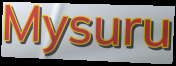
Mysuru